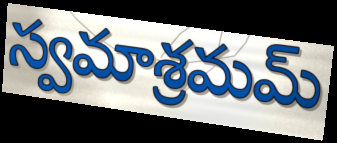
స్వమాశ్రమమ్